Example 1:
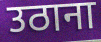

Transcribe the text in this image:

उठाना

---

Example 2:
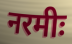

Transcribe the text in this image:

नरमीः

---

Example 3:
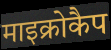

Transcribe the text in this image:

माइक्रोकैप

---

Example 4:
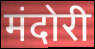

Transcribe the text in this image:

मंदोरी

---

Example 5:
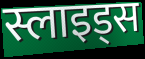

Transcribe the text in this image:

स्लाइड्स